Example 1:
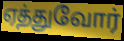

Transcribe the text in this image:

ஏத்துவோர்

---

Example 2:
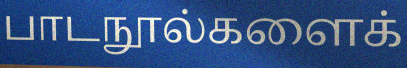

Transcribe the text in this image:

பாடநூல்களைக்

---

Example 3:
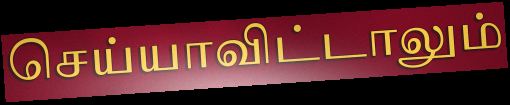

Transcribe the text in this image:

செய்யாவிட்டாலும்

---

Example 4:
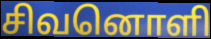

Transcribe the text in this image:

சிவனொளி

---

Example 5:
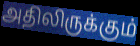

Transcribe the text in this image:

அதிலிருக்கும்